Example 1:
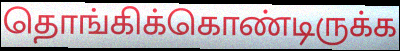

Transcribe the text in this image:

தொங்கிக்கொண்டிருக்க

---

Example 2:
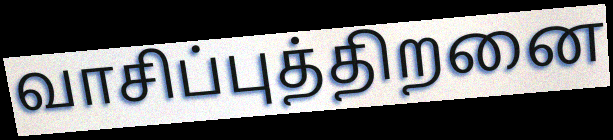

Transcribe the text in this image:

வாசிப்புத்திறனை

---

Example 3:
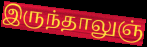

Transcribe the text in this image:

இருந்தாலுஞ்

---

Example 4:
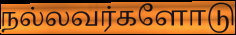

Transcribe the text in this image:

நல்லவர்களோடு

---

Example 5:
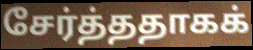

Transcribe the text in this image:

சேர்த்ததாகக்